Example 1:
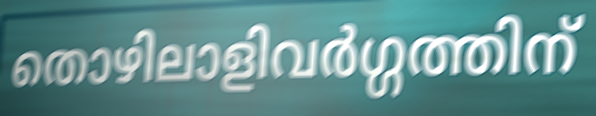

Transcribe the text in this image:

തൊഴിലാളിവർഗ്ഗത്തിന്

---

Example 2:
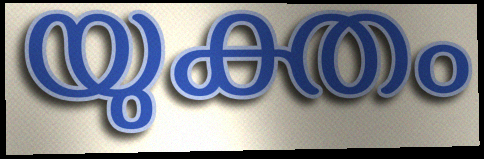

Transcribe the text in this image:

യുക്തം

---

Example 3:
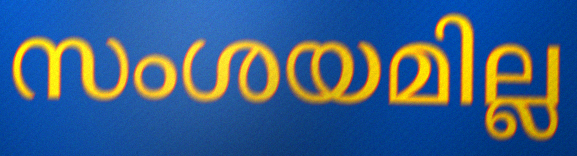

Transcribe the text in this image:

സംശയമില്ല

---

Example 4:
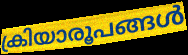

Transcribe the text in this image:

ക്രിയാരൂപങ്ങൾ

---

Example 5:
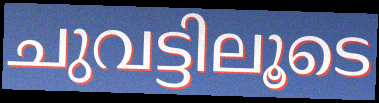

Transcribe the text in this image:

ചുവട്ടിലൂടെ